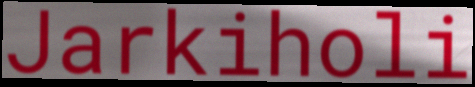
Jarkiholi